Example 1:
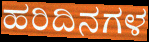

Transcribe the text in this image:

ಹರಿದಿನಗಳ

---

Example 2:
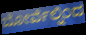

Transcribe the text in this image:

ಬೋರ್ವೆಲ್ನಿಂದ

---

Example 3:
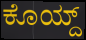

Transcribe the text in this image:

ಕೊಯ್ದ್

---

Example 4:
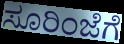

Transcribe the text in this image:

ಸೂರಿಂಜೆಗೆ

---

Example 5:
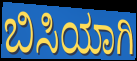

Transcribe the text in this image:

ಬಿಸಿಯಾಗಿ